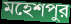
মহেশপুর